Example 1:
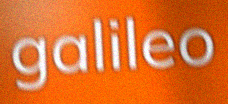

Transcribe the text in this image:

galileo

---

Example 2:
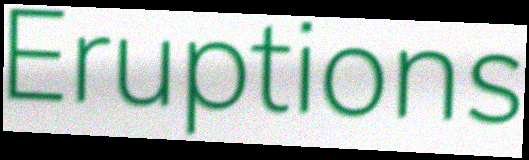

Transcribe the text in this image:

Eruptions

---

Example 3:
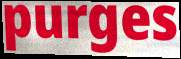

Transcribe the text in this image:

purges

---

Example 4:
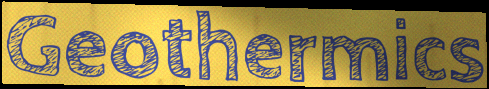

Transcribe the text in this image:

Geothermics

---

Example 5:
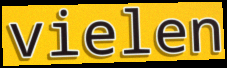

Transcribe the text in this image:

vielen